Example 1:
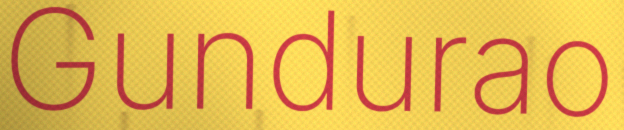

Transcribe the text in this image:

Gundurao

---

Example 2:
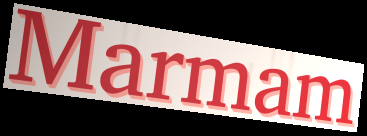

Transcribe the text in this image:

Marmam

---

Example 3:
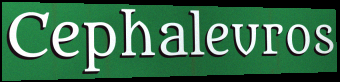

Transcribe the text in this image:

Cephaleuros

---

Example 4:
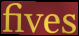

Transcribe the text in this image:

fives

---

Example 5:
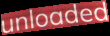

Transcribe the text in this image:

unloaded